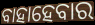
ବାହାହେବାର